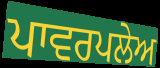
ਪਾਵਰਪਲੇਅ